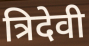
त्रिदेवी